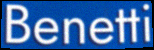
Benetti